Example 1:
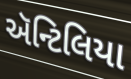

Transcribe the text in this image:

ઍન્ટિલિયા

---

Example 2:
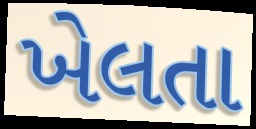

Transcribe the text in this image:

ખેલતા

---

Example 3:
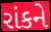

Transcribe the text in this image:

રાંકને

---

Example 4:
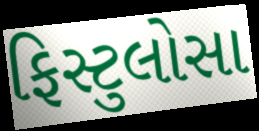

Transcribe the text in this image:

ફિસ્ટુલોસા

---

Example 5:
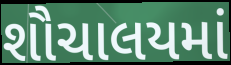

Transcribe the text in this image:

શૌચાલયમાં